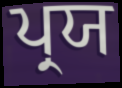
ਪ੍ਰਯ